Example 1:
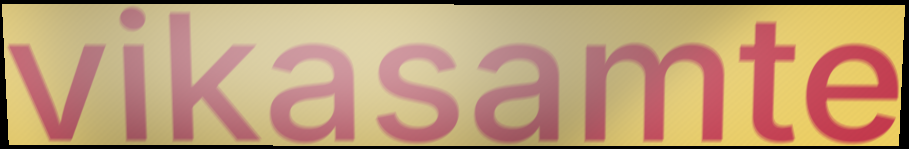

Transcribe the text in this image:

vikasamte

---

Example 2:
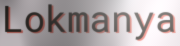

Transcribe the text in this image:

Lokmanya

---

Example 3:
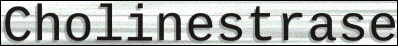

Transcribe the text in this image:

Cholinestrase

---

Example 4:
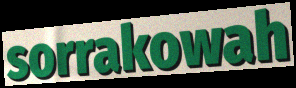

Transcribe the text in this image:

sorrakowah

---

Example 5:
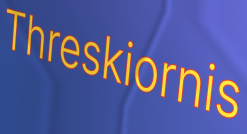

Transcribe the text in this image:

Threskiornis